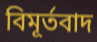
বিমূর্তবাদ